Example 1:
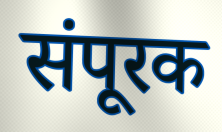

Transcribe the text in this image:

संपूरक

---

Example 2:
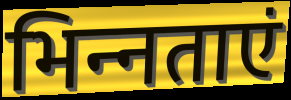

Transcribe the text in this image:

भिन्नताएं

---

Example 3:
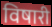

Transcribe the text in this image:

विषारी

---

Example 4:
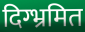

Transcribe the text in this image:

दिग्भ्रमित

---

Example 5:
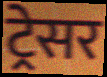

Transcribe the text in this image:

ट्रेसर